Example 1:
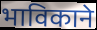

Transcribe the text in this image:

भाविकाने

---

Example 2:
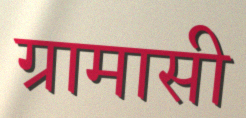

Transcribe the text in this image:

ग्रामासी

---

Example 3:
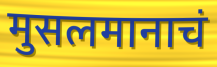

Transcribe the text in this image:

मुसलमानाचं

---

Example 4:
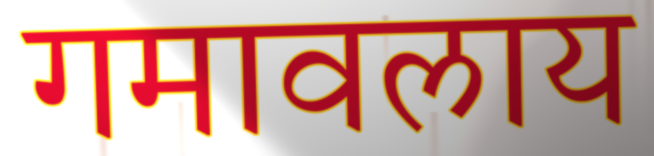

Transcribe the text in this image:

गमावलाय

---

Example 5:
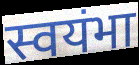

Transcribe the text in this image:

स्वयंभा